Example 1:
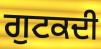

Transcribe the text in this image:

ਗੁਟਕਦੀ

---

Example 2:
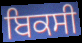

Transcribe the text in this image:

ਬਿਕਸੀ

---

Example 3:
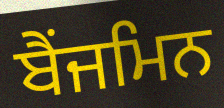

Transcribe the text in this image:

ਬੈਂਜਮਿਨ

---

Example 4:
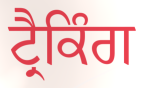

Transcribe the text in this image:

ਟ੍ਰੈਕਿੰਗ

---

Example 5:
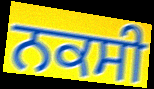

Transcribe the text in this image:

ਨਕਸੀ